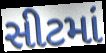
સીટમાં